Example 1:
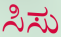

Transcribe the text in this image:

ಸಿಸು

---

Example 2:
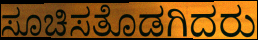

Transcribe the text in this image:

ಸೂಚಿಸತೊಡಗಿದರು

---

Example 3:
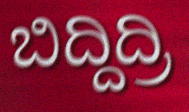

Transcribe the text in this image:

ಬಿದ್ದಿದ್ರಿ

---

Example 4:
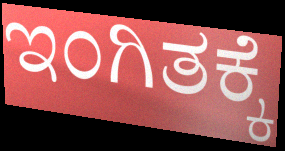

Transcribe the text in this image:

ಇಂಗಿತಕ್ಕೆ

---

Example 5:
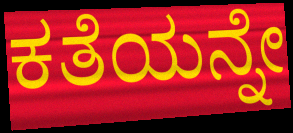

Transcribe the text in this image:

ಕತೆಯನ್ನೇ